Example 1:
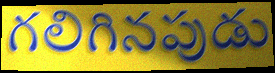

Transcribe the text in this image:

గలిగినపుడు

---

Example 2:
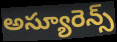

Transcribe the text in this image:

అస్యూరెన్స్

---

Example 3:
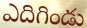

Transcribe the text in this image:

ఎదిగిండు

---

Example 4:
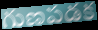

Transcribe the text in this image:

గుణపడక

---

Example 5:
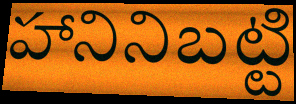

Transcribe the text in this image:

హానినిబట్టి